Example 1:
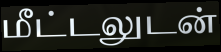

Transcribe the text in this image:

மீட்டலுடன்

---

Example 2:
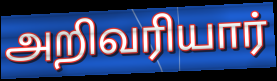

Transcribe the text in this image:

அறிவரியார்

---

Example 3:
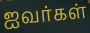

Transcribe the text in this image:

ஐவர்கள்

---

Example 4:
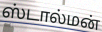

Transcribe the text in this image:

ஸ்டால்மன்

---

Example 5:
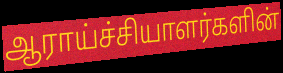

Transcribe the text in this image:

ஆராய்ச்சியாளர்களின்